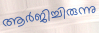
ആർജിച്ചിരുന്നു